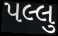
પલ્લુ